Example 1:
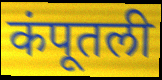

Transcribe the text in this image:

कंपूतली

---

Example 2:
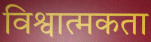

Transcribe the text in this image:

विश्वात्मकता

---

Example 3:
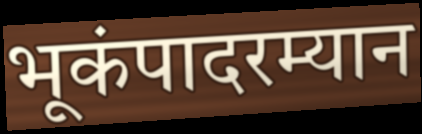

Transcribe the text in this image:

भूकंपादरम्यान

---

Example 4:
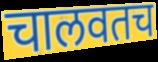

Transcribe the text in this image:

चालवतच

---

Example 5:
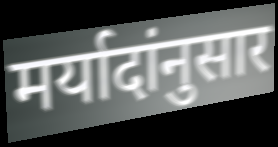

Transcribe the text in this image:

मर्यादांनुसार